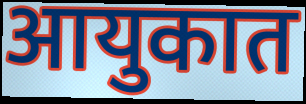
आयुकात